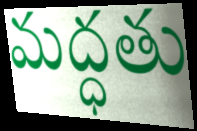
మద్ధతు